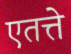
एतत्ते